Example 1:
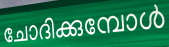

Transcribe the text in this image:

ചോദിക്കുമ്പോൾ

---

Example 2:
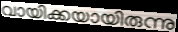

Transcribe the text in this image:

വായിക്കയായിരുന്നു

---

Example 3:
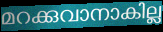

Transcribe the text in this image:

മറക്കുവാനാകില്ല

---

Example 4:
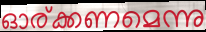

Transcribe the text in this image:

ഓര്ക്കണമെന്നു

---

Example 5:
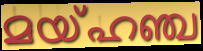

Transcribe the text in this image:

മയ്ഹഞ്ച